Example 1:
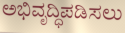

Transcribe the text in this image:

ಅಭಿವೃದ್ಧಿಪಡಿಸಲು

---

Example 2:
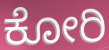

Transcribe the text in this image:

ಕೋರಿ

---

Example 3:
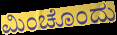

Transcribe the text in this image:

ಮಿಂಚೊಂದು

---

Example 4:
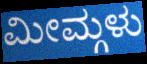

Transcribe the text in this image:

ಮೀಮ್ಗಳು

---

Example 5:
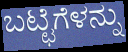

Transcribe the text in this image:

ಬಟ್ಟೆಗೆಳನ್ನು